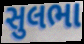
સુલભા